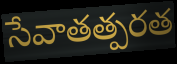
సేవాతత్పరత